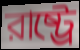
রাষ্ট্রে